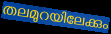
തലമുറയിലേക്കും